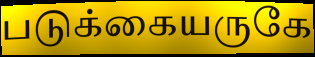
படுக்கையருகே